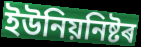
ইউনিয়নিষ্টৰ